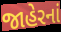
જાહેરનાં